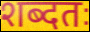
शब्दतः